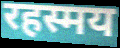
रहस्मय